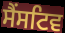
ਸੈਂਸਟਿਵ